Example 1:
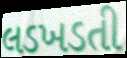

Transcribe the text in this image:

લડખડતી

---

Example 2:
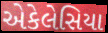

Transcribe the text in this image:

એકેલેસિયા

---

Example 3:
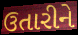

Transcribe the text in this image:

ઉતારીને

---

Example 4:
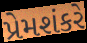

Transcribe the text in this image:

પ્રેમશંકરે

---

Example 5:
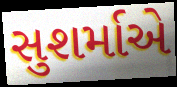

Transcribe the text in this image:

સુશર્માએ